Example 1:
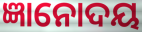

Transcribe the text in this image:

ଜ୍ଞାନୋଦୟ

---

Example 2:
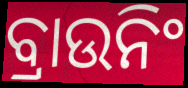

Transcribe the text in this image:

ବ୍ରାଉନିଂ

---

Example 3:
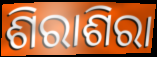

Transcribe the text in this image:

ଶିରାଶିରା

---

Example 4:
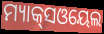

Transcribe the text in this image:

ମ୍ୟାକ୍‌ସଓୟେଲ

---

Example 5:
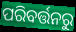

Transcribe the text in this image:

ପରିବର୍ତ୍ତନରୁ